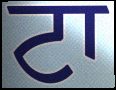
ਟਾ